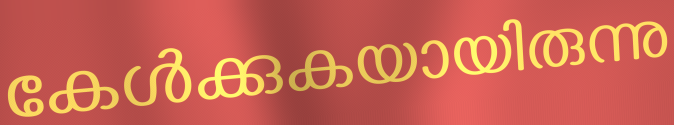
കേൾക്കുകയായിരുന്നു